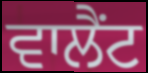
ਵਾਲੈਂਟ